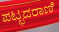
ಪಟ್ಟದರಾಣಿ